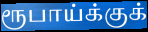
ரூபாய்க்குக்